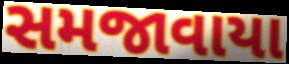
સમજાવાયા